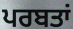
ਪਰਬਤਾਂ